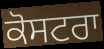
ਕੋਸਟਰਾ